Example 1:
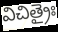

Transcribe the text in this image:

విచిత్రైః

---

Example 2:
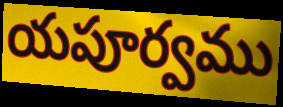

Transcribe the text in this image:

యపూర్వము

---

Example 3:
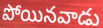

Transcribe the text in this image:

పోయినవాడు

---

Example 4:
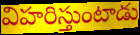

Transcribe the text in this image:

విహరిస్తుంటాడు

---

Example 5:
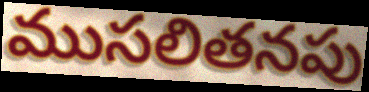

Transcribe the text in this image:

ముసలితనపు